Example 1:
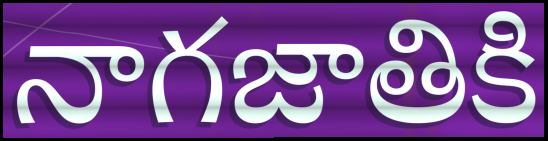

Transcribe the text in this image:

నాగజాతికి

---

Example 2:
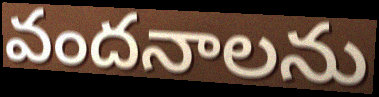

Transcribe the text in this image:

వందనాలను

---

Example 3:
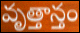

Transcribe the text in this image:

వృత్తాన్తం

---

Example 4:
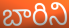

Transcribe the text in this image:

బారిని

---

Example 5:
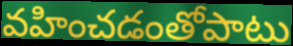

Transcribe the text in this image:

వహించడంతోపాటు